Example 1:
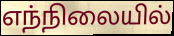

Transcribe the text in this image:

எந்நிலையில்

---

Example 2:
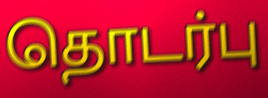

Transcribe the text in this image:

தொடர்பு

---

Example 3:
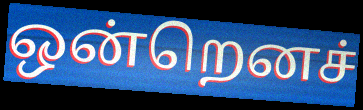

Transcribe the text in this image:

ஒன்றெனச்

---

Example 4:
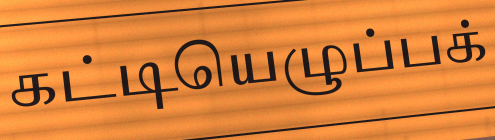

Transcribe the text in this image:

கட்டியெழுப்பக்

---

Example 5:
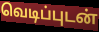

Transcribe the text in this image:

வெடிப்புடன்